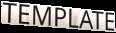
TEMPLATE